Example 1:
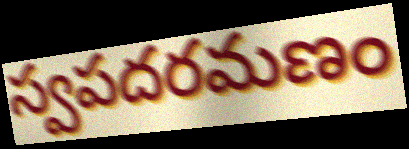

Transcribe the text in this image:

స్వపదరమణం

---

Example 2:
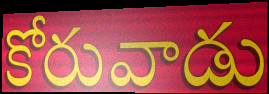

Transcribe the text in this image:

కోరువాడు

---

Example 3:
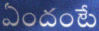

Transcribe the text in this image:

ఏందంటే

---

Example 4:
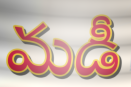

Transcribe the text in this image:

మడీ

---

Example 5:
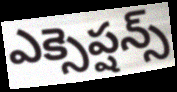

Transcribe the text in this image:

ఎక్సెప్షన్స్